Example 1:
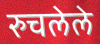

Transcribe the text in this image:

रुचलेले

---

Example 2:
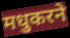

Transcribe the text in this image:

मधुकरने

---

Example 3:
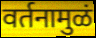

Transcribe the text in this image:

वर्तनामुळं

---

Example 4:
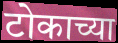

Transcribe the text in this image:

टोकाच्या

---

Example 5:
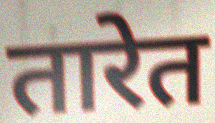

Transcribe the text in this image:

तारेत